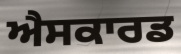
ਐਸਕਾਰਡ